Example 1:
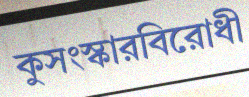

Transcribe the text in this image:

কুসংস্কারবিরোধী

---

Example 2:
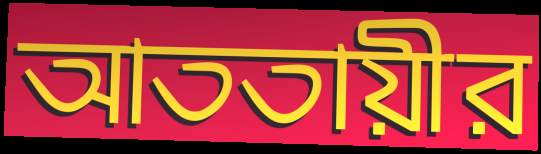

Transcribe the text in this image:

আততায়ীর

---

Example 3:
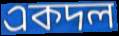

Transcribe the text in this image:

একদল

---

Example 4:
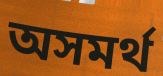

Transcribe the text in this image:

অসমর্থ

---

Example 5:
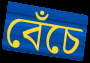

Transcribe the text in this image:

বেঁচে